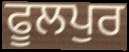
ਫੂਲਪੁਰ